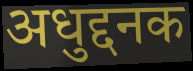
अधुद्दनक